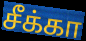
சீக்கா